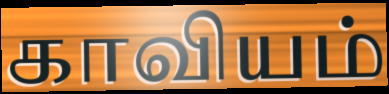
காவியம்